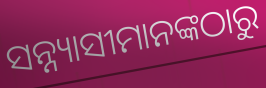
ସନ୍ନ୍ୟାସୀମାନଙ୍କଠାରୁ